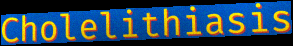
Cholelithiasis